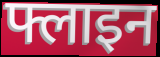
फ्लाइन